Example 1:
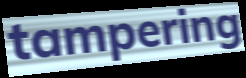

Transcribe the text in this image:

tampering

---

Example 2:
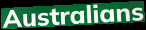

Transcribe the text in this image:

Australians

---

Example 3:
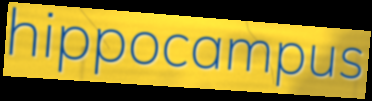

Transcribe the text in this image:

hippocampus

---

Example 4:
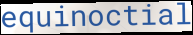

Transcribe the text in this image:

equinoctial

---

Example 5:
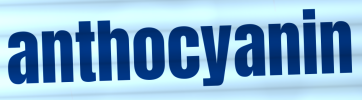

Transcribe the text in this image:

anthocyanin